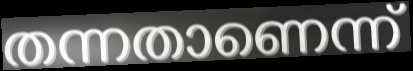
തന്നതാണെന്ന്